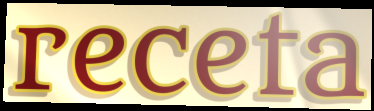
receta